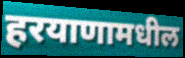
हरयाणामधील